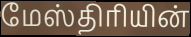
மேஸ்திரியின்